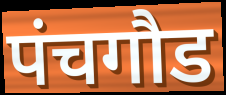
पंचगौड